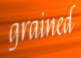
grained